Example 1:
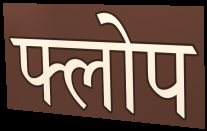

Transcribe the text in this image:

फ्लोप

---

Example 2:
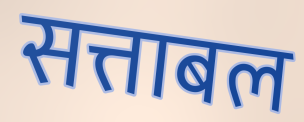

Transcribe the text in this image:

सत्ताबल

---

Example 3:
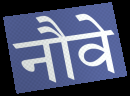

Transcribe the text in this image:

नौवे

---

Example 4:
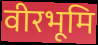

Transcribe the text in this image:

वीरभूमि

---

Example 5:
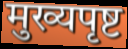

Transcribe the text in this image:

मुख्यपृष्ट